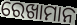
ରେଖାମାନ